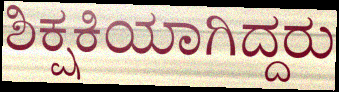
ಶಿಕ್ಷಕಿಯಾಗಿದ್ದರು